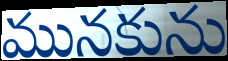
మునకును